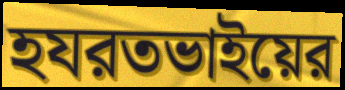
হযরতভাইয়ের